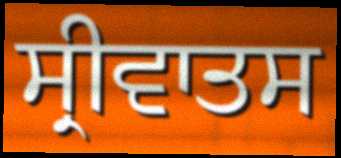
ਸ੍ਰੀਵਾਤਸ